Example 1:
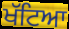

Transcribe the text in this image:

ਖੱਟਿਆ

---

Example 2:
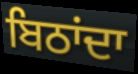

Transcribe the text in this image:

ਬਿਠਾਂਦਾ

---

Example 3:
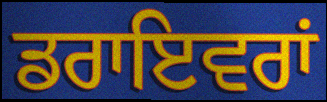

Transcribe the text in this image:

ਡਰਾਇਵਰਾਂ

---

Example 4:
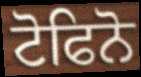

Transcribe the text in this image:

ਟੋਫਿਨੋ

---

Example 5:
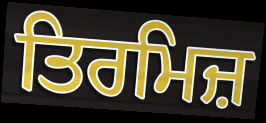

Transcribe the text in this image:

ਤਿਰਮਿਜ਼